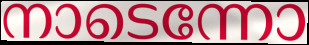
നാടെന്നോ